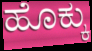
ಹೊಕ್ಕು